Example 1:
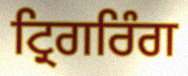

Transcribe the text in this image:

ਟ੍ਰਿਗਰਿੰਗ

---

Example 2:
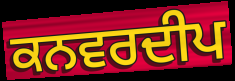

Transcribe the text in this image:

ਕਨਵਰਦੀਪ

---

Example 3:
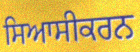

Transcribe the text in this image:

ਸਿਆਸੀਕਰਨ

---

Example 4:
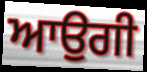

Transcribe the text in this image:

ਆਉਗੀ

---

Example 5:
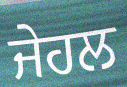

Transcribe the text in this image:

ਜੇਹਲ